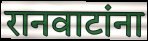
रानवाटांना